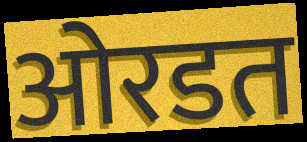
ओरडत